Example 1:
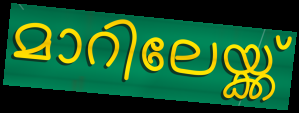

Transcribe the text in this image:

മാറിലേയ്ക്ക്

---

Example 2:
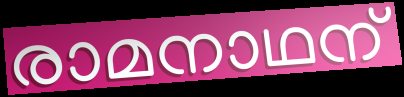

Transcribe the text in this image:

രാമനാഥന്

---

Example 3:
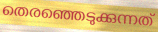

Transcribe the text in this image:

തെരഞ്ഞെടുക്കുന്നത്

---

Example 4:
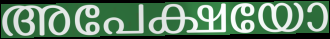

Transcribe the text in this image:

അപേക്ഷയോ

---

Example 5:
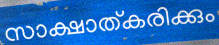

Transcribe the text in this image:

സാക്ഷാത്കരിക്കും